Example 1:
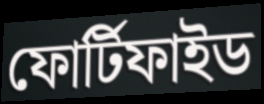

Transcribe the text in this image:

ফোর্টিফাইড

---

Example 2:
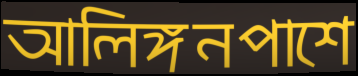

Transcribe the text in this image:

আলিঙ্গনপাশে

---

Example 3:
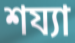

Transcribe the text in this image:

শয্যা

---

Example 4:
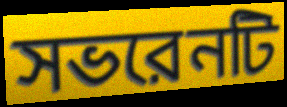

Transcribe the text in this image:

সভরেনটি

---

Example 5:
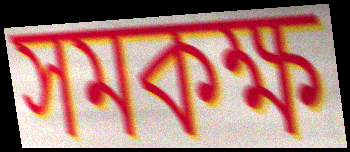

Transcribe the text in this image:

সমকক্ষ